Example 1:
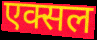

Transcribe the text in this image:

एक्सल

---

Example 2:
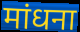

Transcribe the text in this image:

मांधना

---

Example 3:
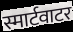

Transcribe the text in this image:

स्मार्टवाटर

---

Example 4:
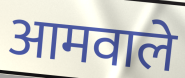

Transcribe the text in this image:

आमवाले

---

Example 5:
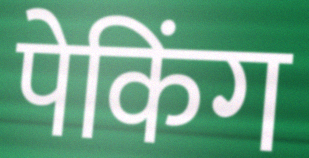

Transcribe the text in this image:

पेकिंग